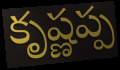
కృష్ణప్ప